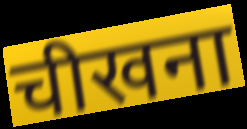
चीखना